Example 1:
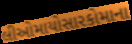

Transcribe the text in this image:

લીઓમાયોસારકોમાના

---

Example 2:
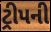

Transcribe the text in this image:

ટ્રીપની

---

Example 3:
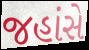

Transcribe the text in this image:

જહાંસે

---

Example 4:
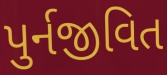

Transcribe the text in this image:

પુર્નજીવિત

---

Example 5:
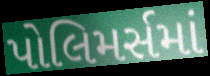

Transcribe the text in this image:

પોલિમર્સમાં